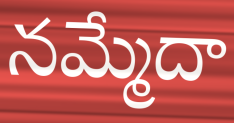
నమ్మేదా